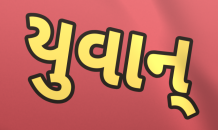
યુવાન્